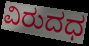
ವಿರುದಧ